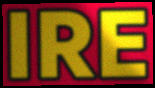
IRE